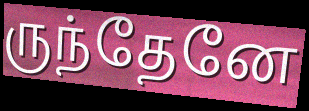
ருந்தேனே